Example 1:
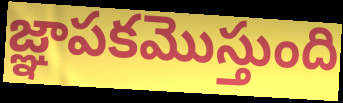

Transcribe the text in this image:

జ్ఞాపకమొస్తుంది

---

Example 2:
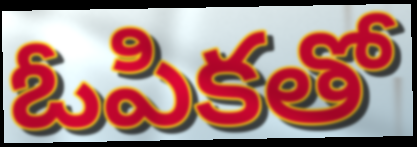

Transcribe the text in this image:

ఓపికతో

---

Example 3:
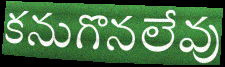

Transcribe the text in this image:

కనుగొనలేవు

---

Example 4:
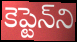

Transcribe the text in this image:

కెప్టెన్‌ని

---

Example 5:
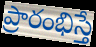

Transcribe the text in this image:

ప్రారంభిస్తే